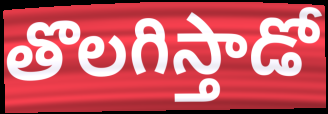
తొలగిస్తాడో